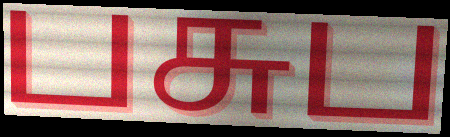
பசுப